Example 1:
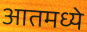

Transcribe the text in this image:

आतमध्ये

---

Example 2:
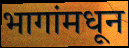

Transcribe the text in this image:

भागांमधून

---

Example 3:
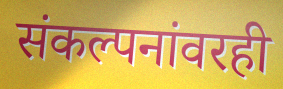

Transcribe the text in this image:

संकल्पनांवरही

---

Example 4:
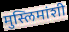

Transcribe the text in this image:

मुस्लिमांशी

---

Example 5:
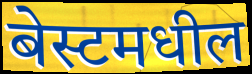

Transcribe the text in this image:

बेस्टमधील